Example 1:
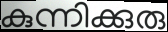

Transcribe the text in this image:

കുന്നിക്കുരു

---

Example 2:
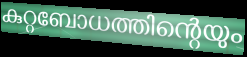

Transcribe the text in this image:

കുറ്റബോധത്തിന്റെയും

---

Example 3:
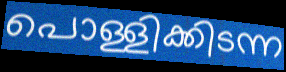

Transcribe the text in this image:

പൊള്ളിക്കിടന്ന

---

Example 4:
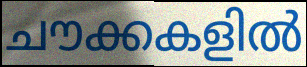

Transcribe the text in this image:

ചൗക്കകളിൽ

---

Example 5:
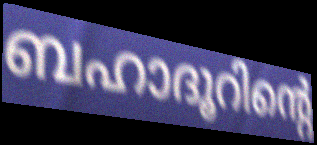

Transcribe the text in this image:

ബഹാദൂറിന്റെ